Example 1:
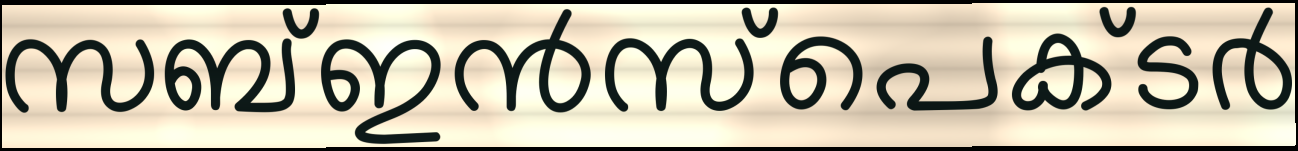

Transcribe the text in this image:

സബ്ഇൻസ്പെക്ടർ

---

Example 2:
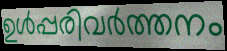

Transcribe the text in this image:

ഉൾപ്പരിവർത്തനം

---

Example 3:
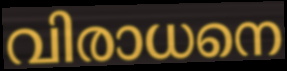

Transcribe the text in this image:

വിരാധനെ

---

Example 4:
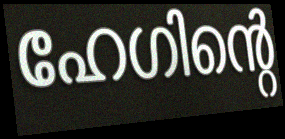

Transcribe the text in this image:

ഹേഗിന്റെ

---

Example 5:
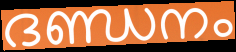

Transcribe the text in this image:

ദണ്ഡനം